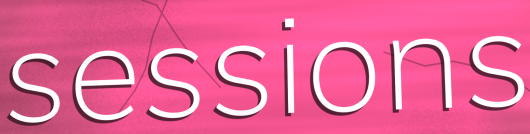
sessions